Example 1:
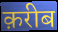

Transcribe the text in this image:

क़रीब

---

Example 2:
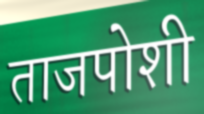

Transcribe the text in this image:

ताजपोशी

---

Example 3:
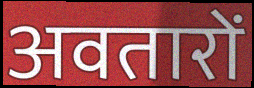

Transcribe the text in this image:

अवतारों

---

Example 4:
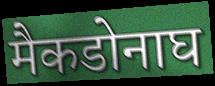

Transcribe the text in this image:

मैकडोनाघ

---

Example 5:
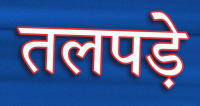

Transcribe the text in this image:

तलपड़े